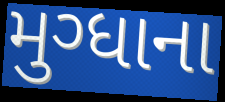
મુગ્ધાના